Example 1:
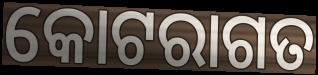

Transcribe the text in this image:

କୋଟରାଗତ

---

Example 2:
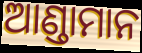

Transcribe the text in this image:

ଆଣ୍ଡାମାନ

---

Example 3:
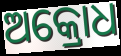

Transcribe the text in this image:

ଅକ୍ରୋଧ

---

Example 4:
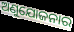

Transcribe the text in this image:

ଅଣୁଯୋଜନାର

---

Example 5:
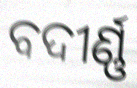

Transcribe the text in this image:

ବଦୀର୍ଣ୍ଣ